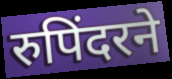
रुपिंदरने